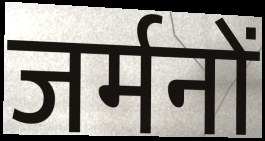
जर्मनों